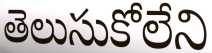
తెలుసుకోలేని